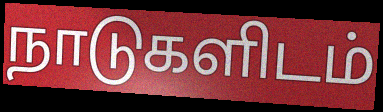
நாடுகளிடம்